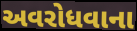
અવરોધવાના